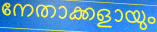
നേതാക്കളായും